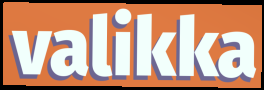
valikka